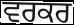
ਵਰਕਰ